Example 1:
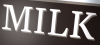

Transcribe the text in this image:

MILK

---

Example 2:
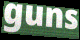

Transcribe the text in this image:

guns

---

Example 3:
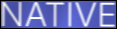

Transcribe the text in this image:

NATIVE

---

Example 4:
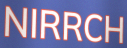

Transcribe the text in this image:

NIRRCH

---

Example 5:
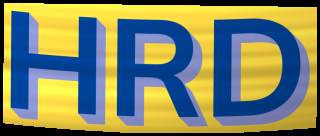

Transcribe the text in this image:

HRD